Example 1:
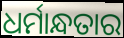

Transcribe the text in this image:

ଧର୍ମାନ୍ଧତାର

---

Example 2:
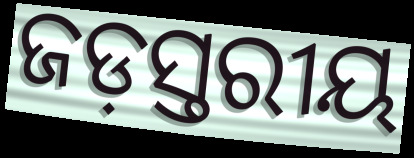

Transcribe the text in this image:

ଜଡ଼ସ୍ତରୀୟ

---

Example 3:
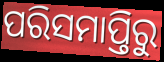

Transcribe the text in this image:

ପରିସମାପ୍ତିରୁ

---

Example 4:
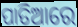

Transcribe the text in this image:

ପାତିଆରେ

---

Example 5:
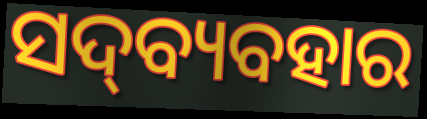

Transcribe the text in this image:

ସଦ୍‍ବ୍ୟବହାର